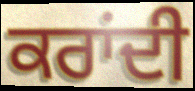
ਕਰਾਂਦੀ